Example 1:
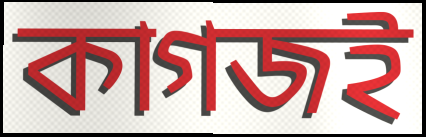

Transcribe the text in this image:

কাগজই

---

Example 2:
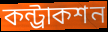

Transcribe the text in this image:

কন্ট্রাকশন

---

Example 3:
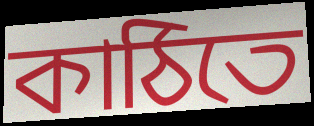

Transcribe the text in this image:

কাঠিতে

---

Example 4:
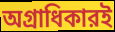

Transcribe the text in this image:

অগ্রাধিকারই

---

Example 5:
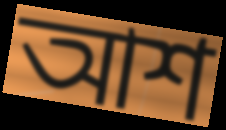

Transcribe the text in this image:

আশ